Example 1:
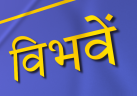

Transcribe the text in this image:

विभवें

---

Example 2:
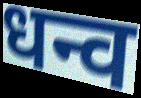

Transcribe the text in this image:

धन्व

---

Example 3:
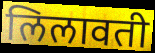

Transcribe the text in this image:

लिलावती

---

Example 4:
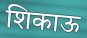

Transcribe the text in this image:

शिकाऊ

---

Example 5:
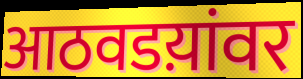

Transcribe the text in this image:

आठवडय़ांवर